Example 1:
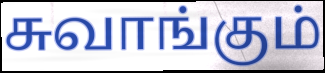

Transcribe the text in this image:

சுவாங்கும்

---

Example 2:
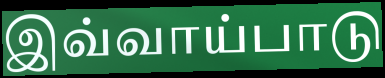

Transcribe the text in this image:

இவ்வாய்பாடு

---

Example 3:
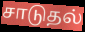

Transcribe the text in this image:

சாடுதல்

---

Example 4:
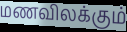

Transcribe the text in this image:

மணவிலக்கும்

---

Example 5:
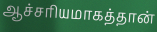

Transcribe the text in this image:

ஆச்சரியமாகத்தான்